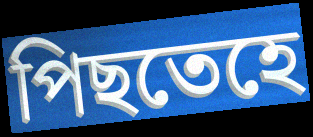
পিছতেহে